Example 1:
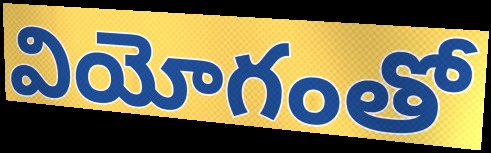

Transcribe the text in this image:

వియోగంతో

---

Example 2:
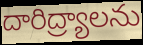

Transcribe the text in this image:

దారిద్ర్యాలను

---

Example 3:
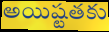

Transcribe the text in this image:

అయిష్టతకు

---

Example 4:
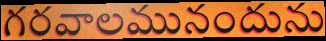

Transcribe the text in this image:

గరవాలమునందును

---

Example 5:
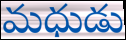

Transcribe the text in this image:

మధుడు